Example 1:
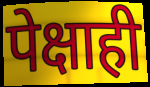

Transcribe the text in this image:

पेक्षाही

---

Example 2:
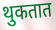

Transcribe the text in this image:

थुकतात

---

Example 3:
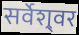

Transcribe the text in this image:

सर्वेश्र्वर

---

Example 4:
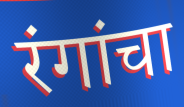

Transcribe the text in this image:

रंगांचा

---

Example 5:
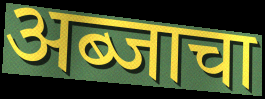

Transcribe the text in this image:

अब्जाचा